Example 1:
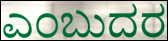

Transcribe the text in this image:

ಎಂಬುದರ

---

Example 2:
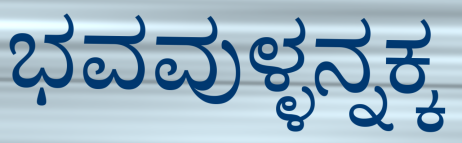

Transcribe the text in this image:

ಭವವುಳ್ಳನ್ನಕ್ಕ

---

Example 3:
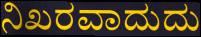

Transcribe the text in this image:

ನಿಖರವಾದುದು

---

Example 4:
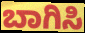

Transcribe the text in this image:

ಬಾಗಿಸಿ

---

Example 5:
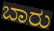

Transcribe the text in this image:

ಬಾರು